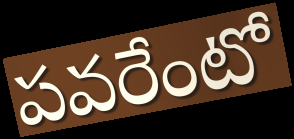
పవరేంటో